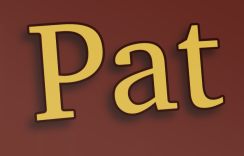
Pat